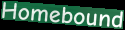
Homebound